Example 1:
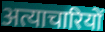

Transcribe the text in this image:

अत्याचारियों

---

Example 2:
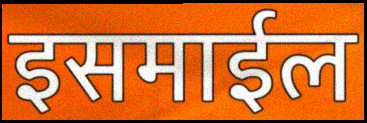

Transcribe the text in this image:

इसमाईल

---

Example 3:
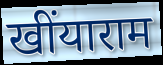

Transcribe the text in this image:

खींयाराम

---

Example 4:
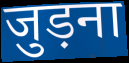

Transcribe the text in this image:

जुड़ना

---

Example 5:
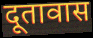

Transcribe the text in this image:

दूतावास